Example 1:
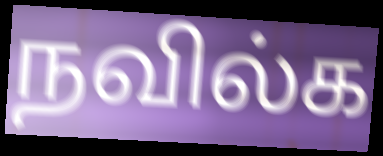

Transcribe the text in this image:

நவில்க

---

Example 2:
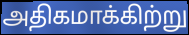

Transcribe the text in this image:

அதிகமாக்கிற்று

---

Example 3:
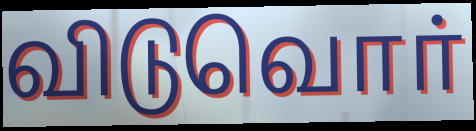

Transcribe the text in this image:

விடுவொர்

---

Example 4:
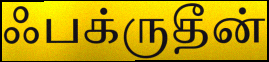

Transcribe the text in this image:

ஃபக்ருதீன்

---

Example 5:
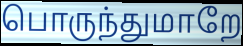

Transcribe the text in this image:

பொருந்துமாறே